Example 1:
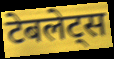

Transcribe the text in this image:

टेबलेट्स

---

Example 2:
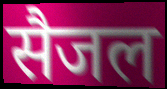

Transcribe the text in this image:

सैजल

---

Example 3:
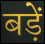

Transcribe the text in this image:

बड़ें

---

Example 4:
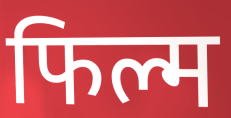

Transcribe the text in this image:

फिल्म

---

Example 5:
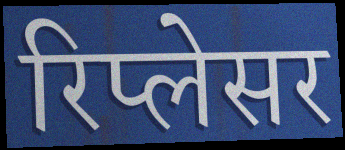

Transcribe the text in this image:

रिप्लेसर